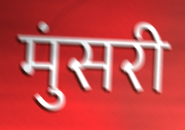
मुंसरी